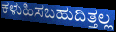
ಕಳುಹಿಸಬಹುದಿತ್ತಲ್ಲ